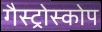
गैस्ट्रोस्कोप